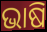
ଭାଷି